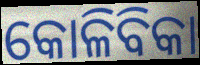
କୋଳିବିକା